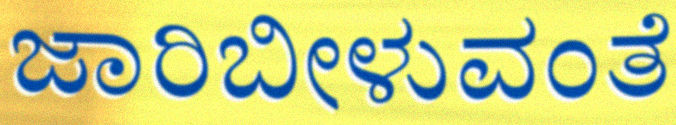
ಜಾರಿಬೀಳುವಂತೆ